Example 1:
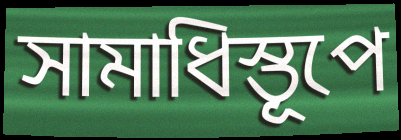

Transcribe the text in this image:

সামাধিস্তূপে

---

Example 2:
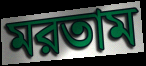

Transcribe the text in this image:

মরতাম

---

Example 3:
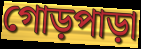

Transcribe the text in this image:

গোড়পাড়া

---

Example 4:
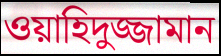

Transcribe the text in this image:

ওয়াহিদুজ্জামান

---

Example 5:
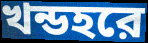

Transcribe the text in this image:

খন্ডহরে